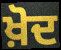
ਖ਼ੋਦ